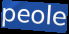
peole